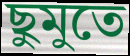
ছুমুতে